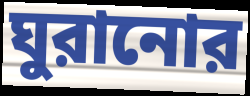
ঘুরানোর